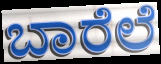
ಬಾರೆಲೆ